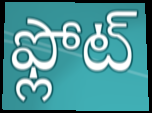
ఫ్లోట్